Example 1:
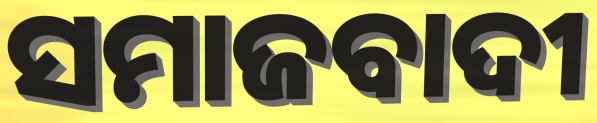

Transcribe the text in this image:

ସମାଜବାଦୀ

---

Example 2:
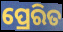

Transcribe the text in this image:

ପ୍ରେରିତ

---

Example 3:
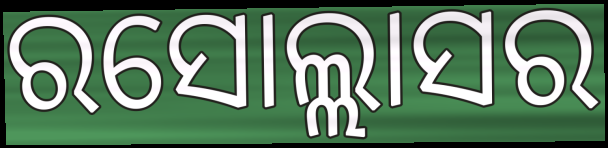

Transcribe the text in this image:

ରସୋଲ୍ଲାସର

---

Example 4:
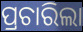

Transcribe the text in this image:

ପ୍ରଚାରିଲା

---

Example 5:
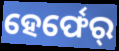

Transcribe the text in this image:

ହେର୍ଫେର୍